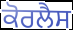
ਕੋਰਲੈਸ